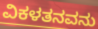
ವಿಕಳತನವನು